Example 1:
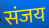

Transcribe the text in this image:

संजय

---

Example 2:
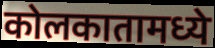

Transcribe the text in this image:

कोलकातामध्ये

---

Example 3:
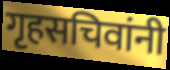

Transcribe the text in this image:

गृहसचिवांनी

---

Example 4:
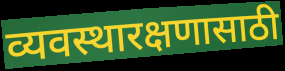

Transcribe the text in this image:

व्यवस्थारक्षणासाठी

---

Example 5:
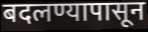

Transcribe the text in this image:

बदलण्यापासून